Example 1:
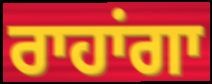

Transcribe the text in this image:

ਰਾਹਾਂਗਾ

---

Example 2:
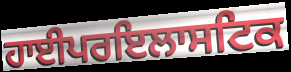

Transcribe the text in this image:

ਹਾਈਪਰਇਲਾਸਟਿਕ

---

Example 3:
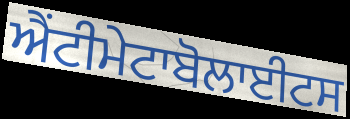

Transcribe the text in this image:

ਐਂਟੀਮੇਟਾਬੋਲਾਈਟਸ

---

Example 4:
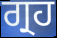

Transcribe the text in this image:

ਗ੍ਰਹ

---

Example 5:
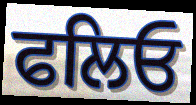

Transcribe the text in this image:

ਫਲਿਓ